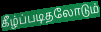
கீழ்ப்படிதலோடும்